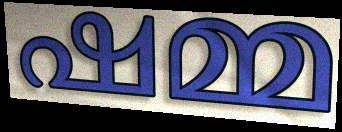
ഷമ്മ